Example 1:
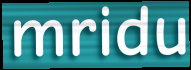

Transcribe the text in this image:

mridu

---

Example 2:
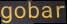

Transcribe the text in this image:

gobar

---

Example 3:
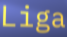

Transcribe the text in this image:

Liga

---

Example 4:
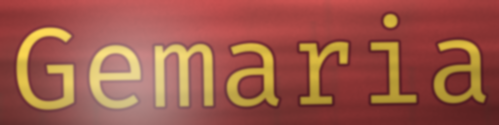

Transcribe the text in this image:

Gemaria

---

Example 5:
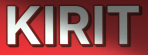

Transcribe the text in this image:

KIRIT